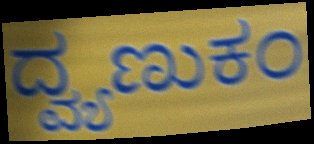
ದ್ವ್ಯಣುಕಂ